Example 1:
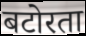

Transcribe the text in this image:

बटोरता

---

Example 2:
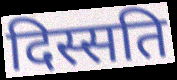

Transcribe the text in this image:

दिस्सति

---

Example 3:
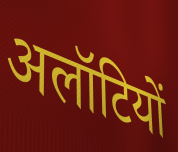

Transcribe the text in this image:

अलॉटियों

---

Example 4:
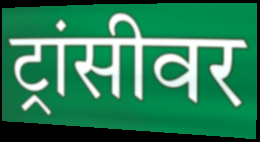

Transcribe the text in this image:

ट्रांसीवर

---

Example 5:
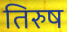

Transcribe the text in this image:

तिरुष